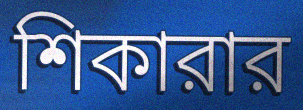
শিকারার